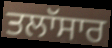
ਤਲਾੱਸਾਰ